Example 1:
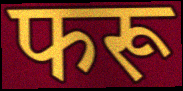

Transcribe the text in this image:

फरू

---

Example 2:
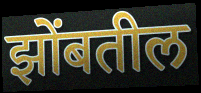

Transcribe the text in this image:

झोंबतील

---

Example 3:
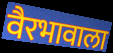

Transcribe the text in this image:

वैरभावाला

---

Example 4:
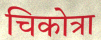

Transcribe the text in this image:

चिकोत्रा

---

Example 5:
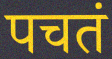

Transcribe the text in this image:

पचतं